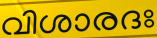
വിശാരദഃ